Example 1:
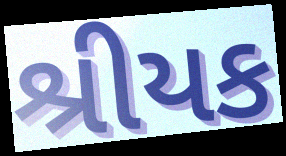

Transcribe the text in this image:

શ્રીયક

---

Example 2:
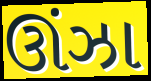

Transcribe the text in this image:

ઊંઝા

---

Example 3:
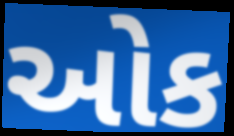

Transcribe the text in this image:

ઓક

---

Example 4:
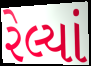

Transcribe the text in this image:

રેલ્યાં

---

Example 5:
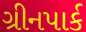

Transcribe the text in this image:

ગ્રીનપાર્ક